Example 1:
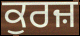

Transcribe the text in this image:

ਕੁਰਜ਼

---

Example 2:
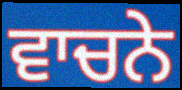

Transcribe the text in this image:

ਵਾਚਨੇ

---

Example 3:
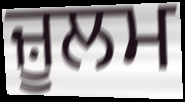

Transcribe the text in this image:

ਜ਼ੂਲਮ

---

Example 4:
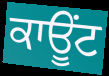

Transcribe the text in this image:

ਕਾਊਂਟ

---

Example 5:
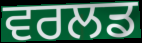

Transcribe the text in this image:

ਵਰਲਡ